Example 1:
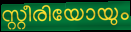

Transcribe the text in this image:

സ്റ്റീരിയോയും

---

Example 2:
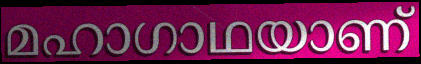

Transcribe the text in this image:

മഹാഗാഥയാണ്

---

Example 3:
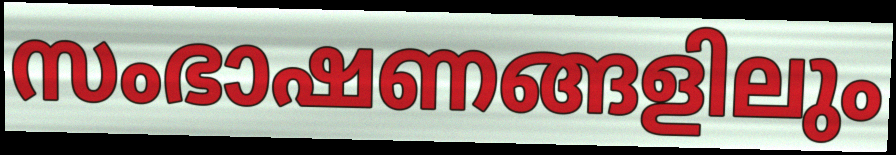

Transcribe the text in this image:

സംഭാഷണങ്ങളിലും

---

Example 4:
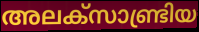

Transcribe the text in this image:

അലക്സാണ്ട്രിയ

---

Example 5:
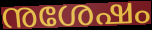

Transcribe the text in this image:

നുശേഷം